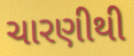
ચારણીથી